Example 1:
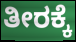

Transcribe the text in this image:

ತೀರಕ್ಕೆ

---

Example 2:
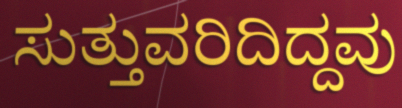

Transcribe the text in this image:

ಸುತ್ತುವರಿದಿದ್ದವು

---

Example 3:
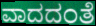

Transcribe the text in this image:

ವಾದದಂತೆ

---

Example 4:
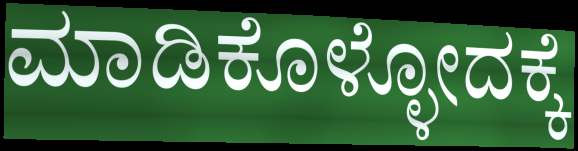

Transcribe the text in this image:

ಮಾಡಿಕೊಳ್ಳೋದಕ್ಕೆ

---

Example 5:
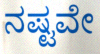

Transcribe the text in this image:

ನಷ್ಟವೇ